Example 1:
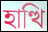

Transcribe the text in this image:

হাত্থি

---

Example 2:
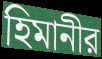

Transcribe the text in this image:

হিমানীর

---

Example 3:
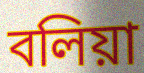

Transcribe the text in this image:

বলিয়া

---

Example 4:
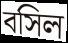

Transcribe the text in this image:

বসিল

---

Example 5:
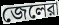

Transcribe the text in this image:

জেলেরা